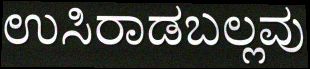
ಉಸಿರಾಡಬಲ್ಲವು